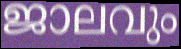
ജാലവും